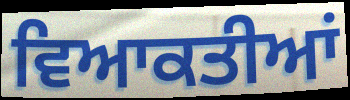
ਵਿਆਕਤੀਆਂ